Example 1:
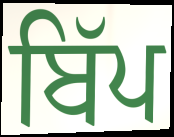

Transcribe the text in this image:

ਬਿੱਪ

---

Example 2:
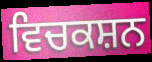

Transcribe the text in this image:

ਵਿਚਕਸ਼ਨ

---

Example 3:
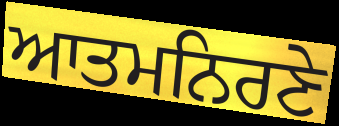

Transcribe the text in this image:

ਆਤਮਨਿਰਣੇ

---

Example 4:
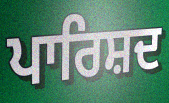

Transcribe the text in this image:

ਪਾਰਿਸ਼ਦ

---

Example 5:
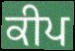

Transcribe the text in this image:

ਕੀਪ